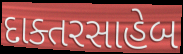
દાક્તરસાહેબ